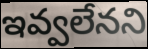
ఇవ్వలేనని